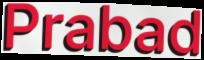
Prabad